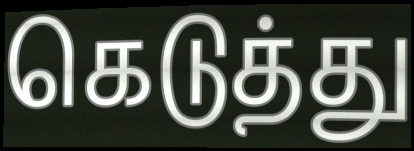
கெடுத்து